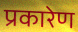
प्रकारेण